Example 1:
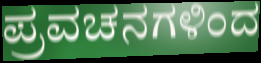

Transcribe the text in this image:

ಪ್ರವಚನಗಳಿಂದ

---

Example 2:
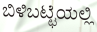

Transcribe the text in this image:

ಬಿಳಿಬಟ್ಟೆಯಲ್ಲಿ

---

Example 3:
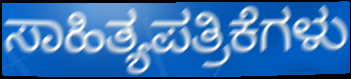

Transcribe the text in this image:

ಸಾಹಿತ್ಯಪತ್ರಿಕೆಗಳು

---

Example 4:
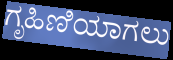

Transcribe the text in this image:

ಗೃಹಿಣಿಯಾಗಲು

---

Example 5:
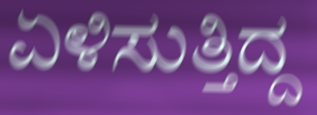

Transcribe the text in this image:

ಏಳಿಸುತ್ತಿದ್ದ